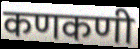
कणकणी